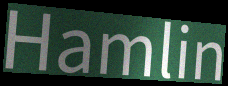
Hamlin